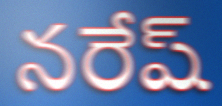
నరేష్